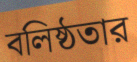
বলিষ্ঠতার